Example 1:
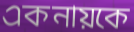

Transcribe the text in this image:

একনায়কে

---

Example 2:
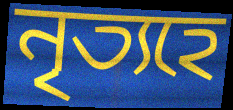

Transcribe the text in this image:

নৃত্যহে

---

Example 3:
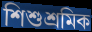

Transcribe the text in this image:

শিশুশ্ৰমিক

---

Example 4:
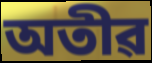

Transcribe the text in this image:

অতীৱ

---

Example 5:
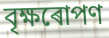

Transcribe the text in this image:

বৃক্ষৰোপণ